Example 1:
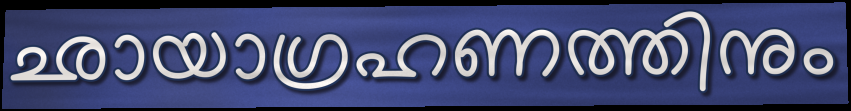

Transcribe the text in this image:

ഛായാഗ്രഹണത്തിനും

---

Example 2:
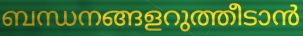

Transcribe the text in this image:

ബന്ധനങ്ങളറുത്തീടാൻ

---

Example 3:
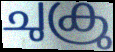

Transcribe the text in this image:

ചുക്രു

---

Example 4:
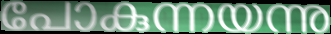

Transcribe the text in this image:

പോകുന്നയന്നു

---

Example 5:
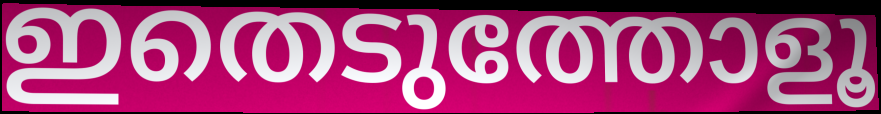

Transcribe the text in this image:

ഇതെടുത്തോളൂ